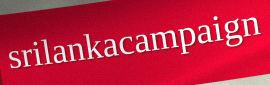
srilankacampaign